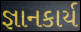
જ્ઞાનકાર્ય